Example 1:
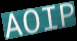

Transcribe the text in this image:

AOIP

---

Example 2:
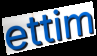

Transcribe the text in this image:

ettim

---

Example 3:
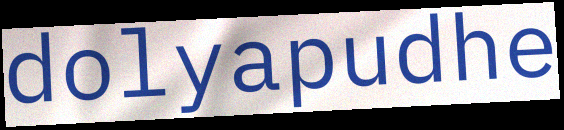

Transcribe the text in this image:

dolyapudhe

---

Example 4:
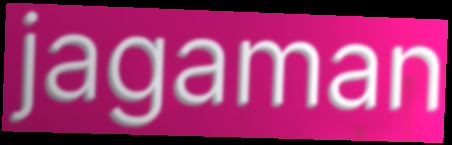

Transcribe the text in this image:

jagaman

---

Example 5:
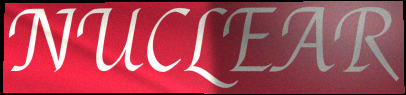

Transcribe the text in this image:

NUCLEAR